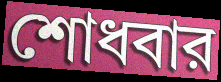
শোধবার